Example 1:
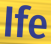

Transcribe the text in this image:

Ife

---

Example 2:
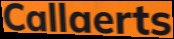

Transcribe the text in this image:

Callaerts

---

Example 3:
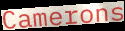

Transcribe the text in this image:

Camerons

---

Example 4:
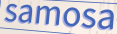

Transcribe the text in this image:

samosa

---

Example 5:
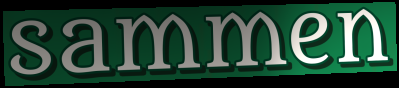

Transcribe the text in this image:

sammen